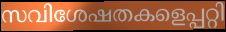
സവിശേഷതകളെപ്പറ്റി